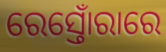
ରେସ୍ତୋଁରାରେ